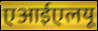
एआईएलयू